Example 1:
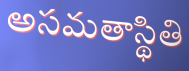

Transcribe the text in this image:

అసమతాస్థితి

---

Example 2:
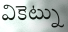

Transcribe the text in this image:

వికెట్ను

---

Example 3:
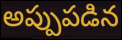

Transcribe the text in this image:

అప్పుపడిన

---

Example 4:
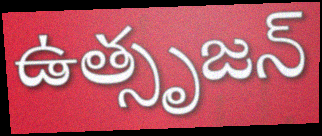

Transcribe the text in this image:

ఉత్సృజన్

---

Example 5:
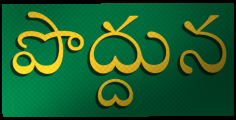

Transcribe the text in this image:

పొద్దున